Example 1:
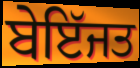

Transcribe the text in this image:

ਬੇਇੱਜਤ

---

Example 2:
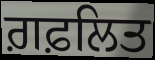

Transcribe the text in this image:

ਗ਼ਫ਼ਲਿਤ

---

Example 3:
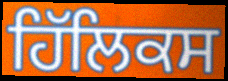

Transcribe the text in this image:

ਹਿੱਲਿਕਸ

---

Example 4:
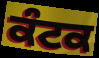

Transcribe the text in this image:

ਕੰਟਕ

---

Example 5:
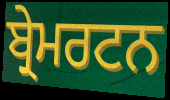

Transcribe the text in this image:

ਬ੍ਰੇਮਰਟਨ